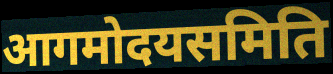
आगमोदयसमिति